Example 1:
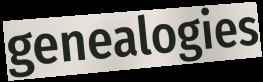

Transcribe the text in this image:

genealogies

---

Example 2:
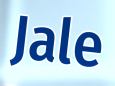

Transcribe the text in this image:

Jale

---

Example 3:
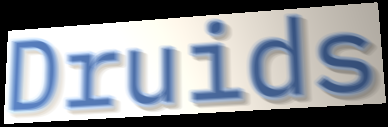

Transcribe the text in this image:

Druids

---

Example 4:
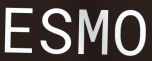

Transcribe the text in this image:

ESMO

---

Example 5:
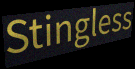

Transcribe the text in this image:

Stingless